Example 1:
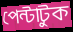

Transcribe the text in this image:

পেন্টাটুক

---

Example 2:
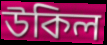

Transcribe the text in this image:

উকিল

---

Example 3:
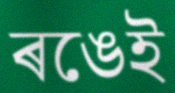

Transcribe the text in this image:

ৰঙেই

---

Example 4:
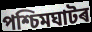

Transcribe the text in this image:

পশ্চিমঘাটৰ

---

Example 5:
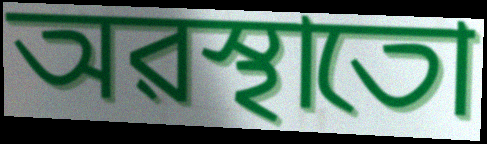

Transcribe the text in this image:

অৱস্থাতো